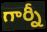
గార్నీ